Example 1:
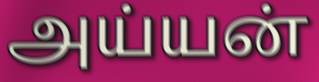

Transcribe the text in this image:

அய்யன்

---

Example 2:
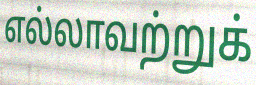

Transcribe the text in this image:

எல்லாவற்றுக்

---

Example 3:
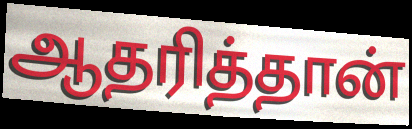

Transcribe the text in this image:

ஆதரித்தான்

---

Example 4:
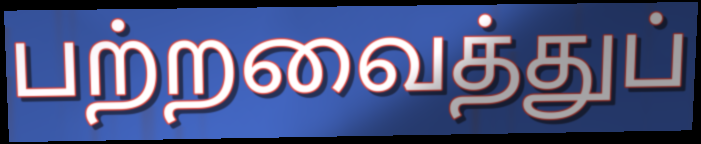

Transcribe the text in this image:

பற்றவைத்துப்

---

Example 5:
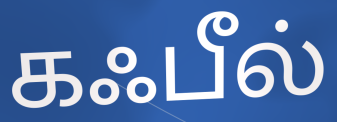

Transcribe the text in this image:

கஃபீல்